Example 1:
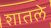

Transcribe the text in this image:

शातले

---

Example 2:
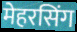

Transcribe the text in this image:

मेहरसिंग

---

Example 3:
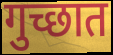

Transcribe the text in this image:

गुच्छात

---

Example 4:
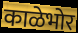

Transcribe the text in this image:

काळेभोर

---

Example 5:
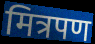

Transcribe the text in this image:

मित्रपण